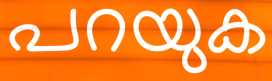
പറയുക